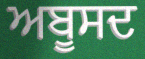
ਅਬੂਸਦ